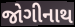
જોગીનાથ